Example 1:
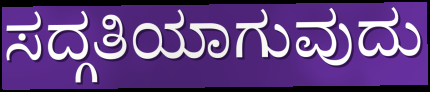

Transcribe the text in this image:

ಸದ್ಗತಿಯಾಗುವುದು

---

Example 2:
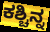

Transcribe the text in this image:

ಕಶ್ಚಿನ್ನ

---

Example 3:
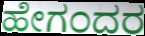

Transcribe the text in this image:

ಹೇಗಂದರ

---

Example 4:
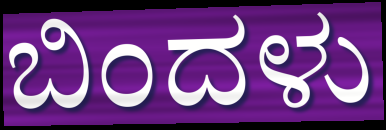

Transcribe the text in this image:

ಬಿಂದಳು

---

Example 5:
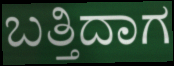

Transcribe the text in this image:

ಬತ್ತಿದಾಗ